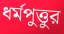
ধর্মপুত্তুর